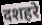
दशहरे